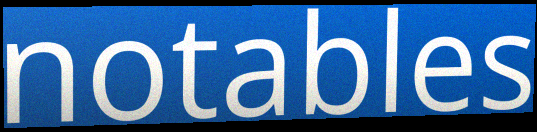
notables